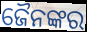
ଜୈନଙ୍କର